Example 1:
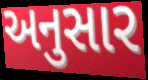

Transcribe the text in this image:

અનુસાર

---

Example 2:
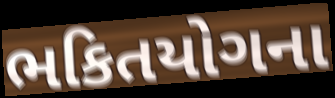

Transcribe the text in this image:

ભકિતયોગના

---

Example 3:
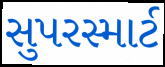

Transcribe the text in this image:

સુપરસ્માર્ટ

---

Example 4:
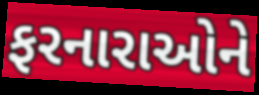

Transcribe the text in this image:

ફરનારાઓને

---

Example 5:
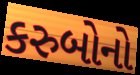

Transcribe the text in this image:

કરુબોનો